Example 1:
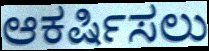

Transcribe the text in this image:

ಆಕರ್ಷಿಸಲು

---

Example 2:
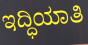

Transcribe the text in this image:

ಇದ್ಧಿಯಾತಿ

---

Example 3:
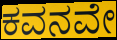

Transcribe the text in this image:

ಕವನವೇ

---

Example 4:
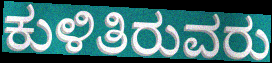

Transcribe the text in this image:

ಕುಳಿತಿರುವರು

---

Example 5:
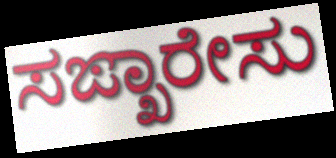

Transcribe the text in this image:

ಸಙ್ಖಾರೇಸು